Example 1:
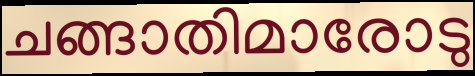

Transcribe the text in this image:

ചങ്ങാതിമാരോടു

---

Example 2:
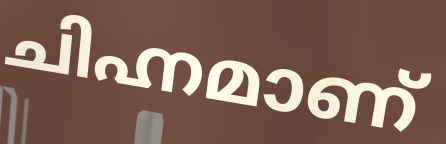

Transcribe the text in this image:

ചിഹ്നമാണ്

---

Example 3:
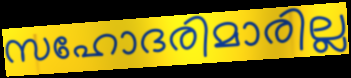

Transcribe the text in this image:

സഹോദരിമാരില്ല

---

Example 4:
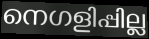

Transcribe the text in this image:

നെഗളിപ്പില്ല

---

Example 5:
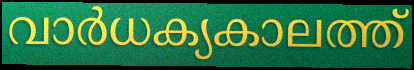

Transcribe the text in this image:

വാർധക്യകാലത്ത്